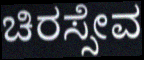
ಚಿರಸ್ಸೇವ